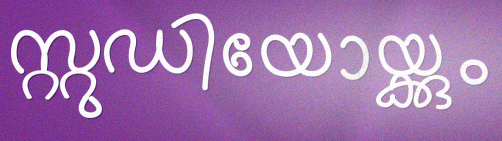
സ്റ്റുഡിയോയ്ക്കും